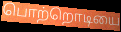
பொற்றொடியை